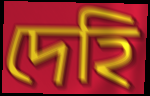
দেহি